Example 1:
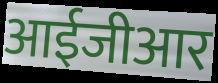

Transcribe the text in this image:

आईजीआर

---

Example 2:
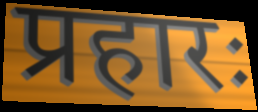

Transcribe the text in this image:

प्रहारः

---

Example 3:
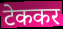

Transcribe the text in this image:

टेककर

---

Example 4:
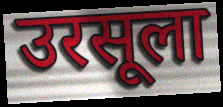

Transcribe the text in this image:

उरसूला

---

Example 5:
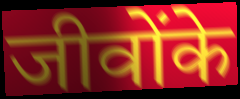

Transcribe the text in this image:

जीवोंके